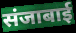
संजाबाई